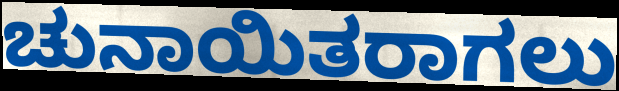
ಚುನಾಯಿತರಾಗಲು